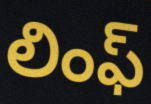
లింఫ్